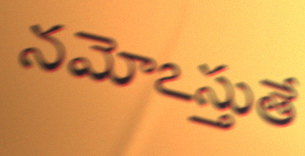
నమోఽస్తుతే